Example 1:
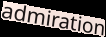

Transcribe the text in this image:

admiration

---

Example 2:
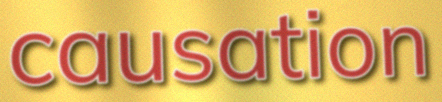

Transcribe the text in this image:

causation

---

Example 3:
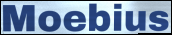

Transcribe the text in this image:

Moebius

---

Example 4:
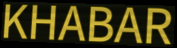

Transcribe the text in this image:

KHABAR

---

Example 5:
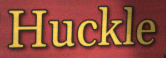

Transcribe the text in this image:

Huckle